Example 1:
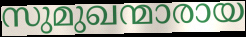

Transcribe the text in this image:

സുമുഖന്മാരായ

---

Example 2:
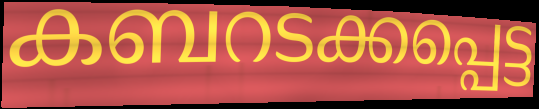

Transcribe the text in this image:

കബറടക്കപ്പെട്ട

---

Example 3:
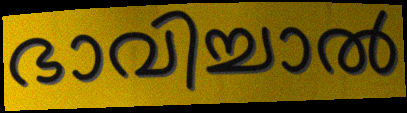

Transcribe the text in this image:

ഭാവിച്ചാൽ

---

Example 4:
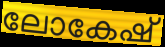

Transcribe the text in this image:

ലോകേഷ്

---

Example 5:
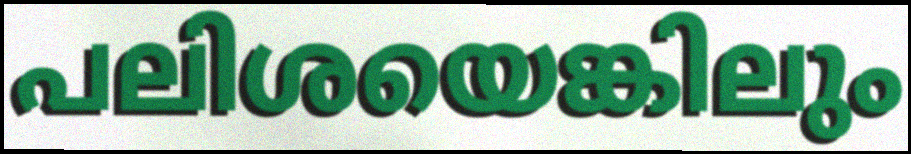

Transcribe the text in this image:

പലിശയെങ്കിലും